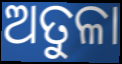
ଅତୁଳା